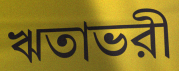
ঋতাভরী